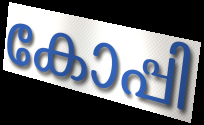
കോപ്പി